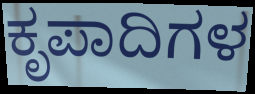
ಕೃಪಾದಿಗಳ